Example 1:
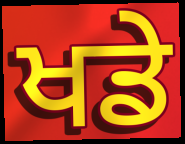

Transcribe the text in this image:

ਖਡੇ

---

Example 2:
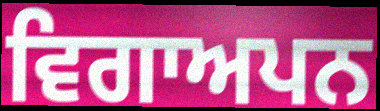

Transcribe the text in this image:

ਵਿਗਾਅਪਨ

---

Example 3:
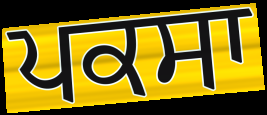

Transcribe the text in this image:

ਪਕਸਾ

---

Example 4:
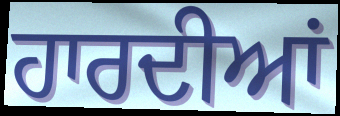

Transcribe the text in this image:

ਹਾਰਦੀਆਂ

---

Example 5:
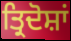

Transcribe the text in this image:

ਤ੍ਰਿਦੋਸ਼ਾਂ